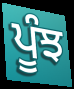
ਪੂੰਝ